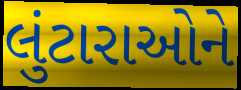
લુંટારાઓને